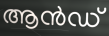
ആൻഡ്